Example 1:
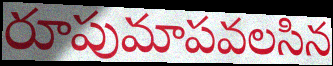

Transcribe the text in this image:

రూపుమాపవలసిన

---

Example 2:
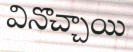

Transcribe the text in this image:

వినొచ్చాయి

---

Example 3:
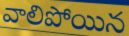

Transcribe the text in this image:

వాలిపోయిన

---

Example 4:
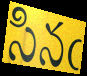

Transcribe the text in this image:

సినఁ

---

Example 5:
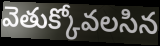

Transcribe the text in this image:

వెతుక్కోవలసిన